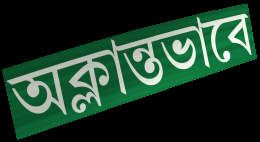
অক্লান্তভাবে